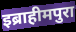
इब्राहीमपुरा